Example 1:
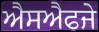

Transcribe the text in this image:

ਐਸਐਫਜੇ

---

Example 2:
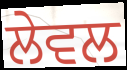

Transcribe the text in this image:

ਲੇਵਲ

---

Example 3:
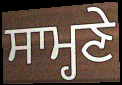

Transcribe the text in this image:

ਸਾਮ੍ਹਣੇ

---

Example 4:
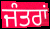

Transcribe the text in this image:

ਜੰਤਰਾਂ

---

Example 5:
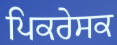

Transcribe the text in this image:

ਪਿਕਰੇਸਕ